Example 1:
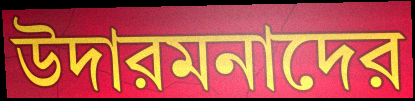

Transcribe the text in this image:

উদারমনাদের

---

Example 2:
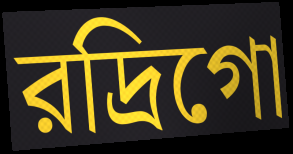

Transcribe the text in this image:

রদ্রিগো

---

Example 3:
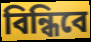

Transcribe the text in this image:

বিন্ধিবে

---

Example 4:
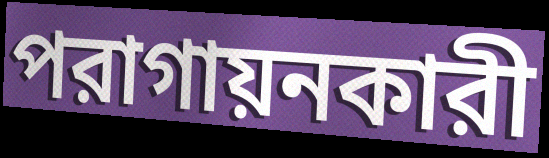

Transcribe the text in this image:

পরাগায়নকারী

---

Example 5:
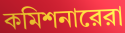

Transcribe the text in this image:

কমিশনারেরা